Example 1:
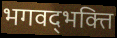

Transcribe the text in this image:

भगवद्भक्ति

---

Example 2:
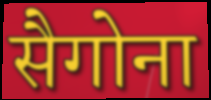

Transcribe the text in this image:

सैगोना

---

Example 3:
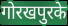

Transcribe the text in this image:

गोरखपुरके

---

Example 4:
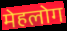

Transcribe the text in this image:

मेहलोग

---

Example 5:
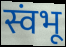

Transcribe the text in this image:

स्वंभू